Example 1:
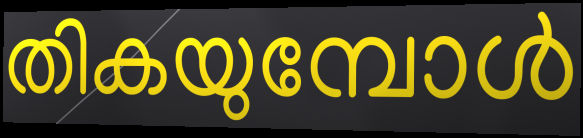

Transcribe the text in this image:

തികയുമ്പോൾ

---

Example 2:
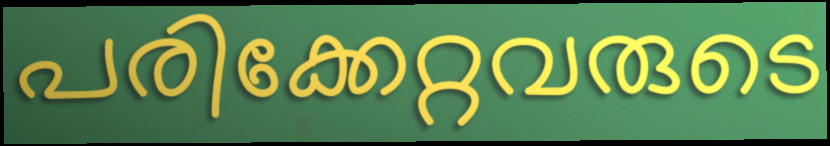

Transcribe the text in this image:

പരിക്കേറ്റവരുടെ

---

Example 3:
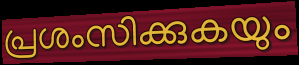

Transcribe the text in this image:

പ്രശംസിക്കുകയും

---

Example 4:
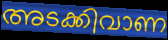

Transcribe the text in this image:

അടക്കിവാണ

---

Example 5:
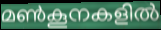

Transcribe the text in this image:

മൺകൂനകളിൽ